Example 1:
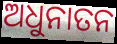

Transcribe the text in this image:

ଅଧୁନାତନ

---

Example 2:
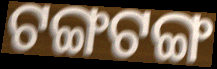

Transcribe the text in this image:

ଟଙ୍ଗଟଙ୍ଗ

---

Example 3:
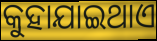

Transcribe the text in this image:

କୁହାଯାଇଥାଏ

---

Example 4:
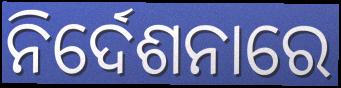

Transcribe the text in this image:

ନିର୍ଦେଶନାରେ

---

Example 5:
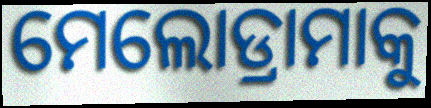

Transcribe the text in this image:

ମେଲୋଡ୍ରାମାକୁ